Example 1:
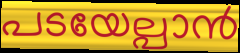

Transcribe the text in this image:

പടയേല്പാൻ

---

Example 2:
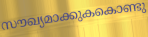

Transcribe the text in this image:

സൗഖ്യമാക്കുകകൊണ്ടു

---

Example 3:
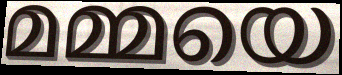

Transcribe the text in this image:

മമ്മയെ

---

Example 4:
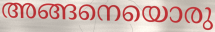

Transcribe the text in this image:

അങ്ങനെയൊരു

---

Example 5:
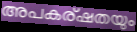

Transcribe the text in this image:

അപകര്ഷതയും